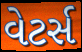
વેટર્સ